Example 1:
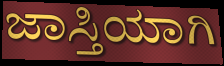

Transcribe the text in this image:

ಜಾಸ್ತಿಯಾಗಿ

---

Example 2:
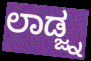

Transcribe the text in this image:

ಲಾಡ್ಜ್ನ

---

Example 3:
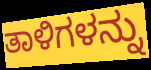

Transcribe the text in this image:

ತಾಳಿಗಳನ್ನು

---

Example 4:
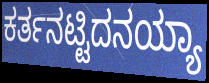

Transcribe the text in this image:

ಕರ್ತನಟ್ಟಿದನಯ್ಯಾ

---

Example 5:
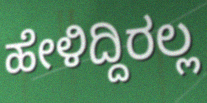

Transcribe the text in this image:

ಹೇಳಿದ್ದಿರಲ್ಲ